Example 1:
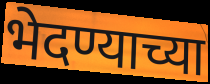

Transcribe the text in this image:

भेदण्याच्या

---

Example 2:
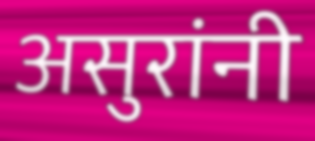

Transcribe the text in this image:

असुरांनी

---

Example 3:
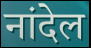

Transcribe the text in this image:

नांदेल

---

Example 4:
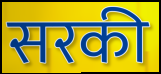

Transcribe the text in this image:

सरकी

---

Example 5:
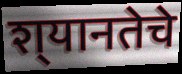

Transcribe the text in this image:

श्यानतेचे